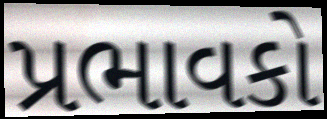
પ્રભાવકો